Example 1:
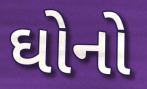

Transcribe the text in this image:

ઘોનો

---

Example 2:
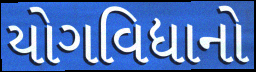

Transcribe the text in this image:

યોગવિદ્યાનો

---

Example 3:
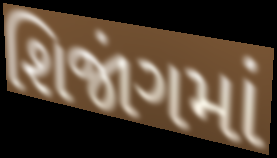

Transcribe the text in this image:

શિજાંગમાં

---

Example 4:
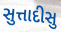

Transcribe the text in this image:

સુત્તાદીસુ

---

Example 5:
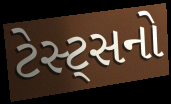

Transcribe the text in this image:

ટેસ્ટ્સનો